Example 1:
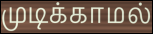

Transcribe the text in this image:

முடிக்காமல்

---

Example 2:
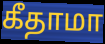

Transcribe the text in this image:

கீதாமா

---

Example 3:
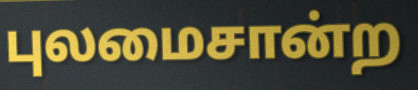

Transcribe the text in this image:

புலமைசான்ற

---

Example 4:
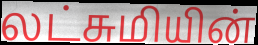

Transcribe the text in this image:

லட்சுமியின்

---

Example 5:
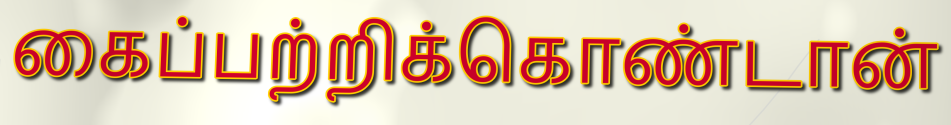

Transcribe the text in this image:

கைப்பற்றிக்கொண்டான்